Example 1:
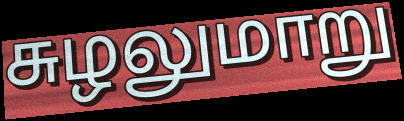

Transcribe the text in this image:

சுழலுமாறு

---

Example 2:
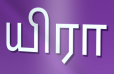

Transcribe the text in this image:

யிரா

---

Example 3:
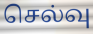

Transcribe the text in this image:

செல்வு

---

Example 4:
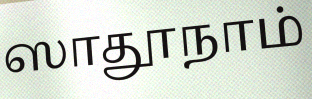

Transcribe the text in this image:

ஸாதூநாம்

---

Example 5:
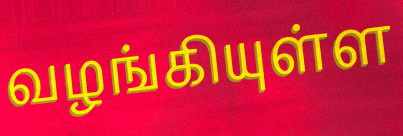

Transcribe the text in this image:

வழங்கியுள்ள